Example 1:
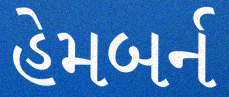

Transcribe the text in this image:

હેમબર્ન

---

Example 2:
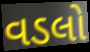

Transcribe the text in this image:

વડલો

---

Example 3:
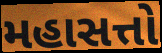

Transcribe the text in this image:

મહાસત્તો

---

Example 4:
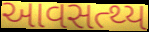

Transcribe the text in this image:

આવસત્થ્ય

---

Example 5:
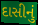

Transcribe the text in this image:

દાસીનું